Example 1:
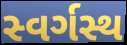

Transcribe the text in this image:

સ્વર્ગસ્થ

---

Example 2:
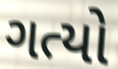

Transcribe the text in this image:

ગત્યો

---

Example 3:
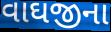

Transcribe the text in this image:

વાઘજીના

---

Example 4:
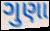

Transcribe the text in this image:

ગુણા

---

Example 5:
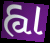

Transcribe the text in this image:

હ્વા